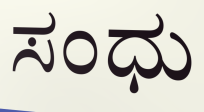
ಸಂಧು